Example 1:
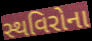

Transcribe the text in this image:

સ્થવિરોના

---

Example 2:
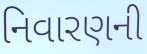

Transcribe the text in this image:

નિવારણની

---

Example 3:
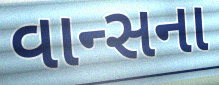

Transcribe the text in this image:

વાન્સના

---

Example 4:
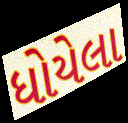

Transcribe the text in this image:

ધોયેલા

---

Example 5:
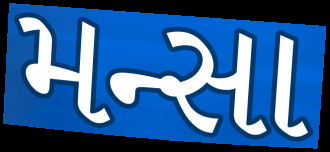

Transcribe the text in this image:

મન્સા